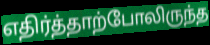
எதிர்த்தாற்போலிருந்த